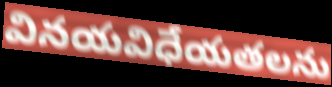
వినయవిధేయతలను